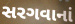
સરગવાનાં